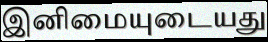
இனிமையுடையது